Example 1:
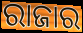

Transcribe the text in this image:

ରାଜାର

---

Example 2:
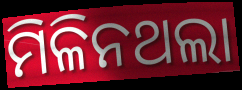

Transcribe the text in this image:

ମିଳିନଥଲା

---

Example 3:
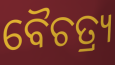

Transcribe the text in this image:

ବୈଚତ୍ର୍ୟ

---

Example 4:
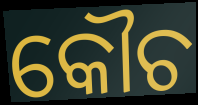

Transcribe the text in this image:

କୌଚ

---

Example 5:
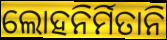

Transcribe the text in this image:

ଲୋହନିର୍ମିତାନି